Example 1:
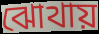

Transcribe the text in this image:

ঝোথায়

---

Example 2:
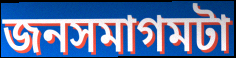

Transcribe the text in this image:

জনসমাগমটা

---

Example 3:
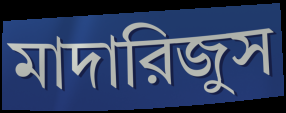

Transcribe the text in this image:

মাদারিজুস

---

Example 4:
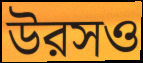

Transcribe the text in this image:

উরসও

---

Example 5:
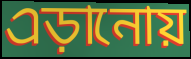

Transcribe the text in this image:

এড়ানোয়